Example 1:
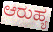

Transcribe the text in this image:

ಆರುಹ್ಯ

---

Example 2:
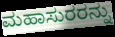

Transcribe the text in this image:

ಮಹಾಸುರರನ್ನು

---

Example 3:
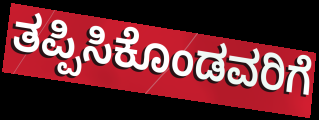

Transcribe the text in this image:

ತಪ್ಪಿಸಿಕೊಂಡವರಿಗೆ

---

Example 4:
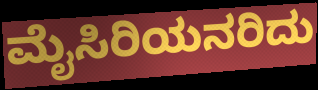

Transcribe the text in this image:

ಮೈಸಿರಿಯನರಿದು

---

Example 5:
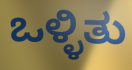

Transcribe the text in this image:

ಒಳ್ಳಿತು